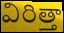
విరిత్తా